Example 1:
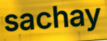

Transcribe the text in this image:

sachay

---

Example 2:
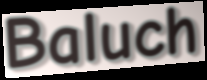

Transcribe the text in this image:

Baluch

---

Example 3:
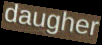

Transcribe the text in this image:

daugher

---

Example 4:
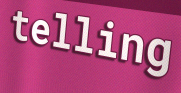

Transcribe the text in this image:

telling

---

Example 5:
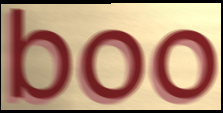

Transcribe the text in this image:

boo